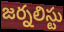
జర్నలిస్టు